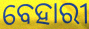
ବେହାରୀ